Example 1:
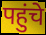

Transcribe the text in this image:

पहुंचे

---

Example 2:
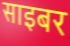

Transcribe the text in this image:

साइबर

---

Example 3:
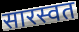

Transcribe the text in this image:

सारस्वत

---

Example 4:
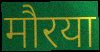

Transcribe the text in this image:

मौरया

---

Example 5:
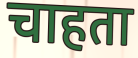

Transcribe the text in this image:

चाहता